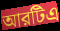
আরটিএ